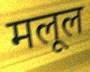
मलूल